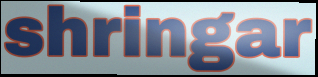
shringar